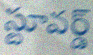
స్టూవర్డ్